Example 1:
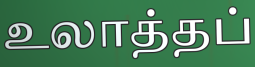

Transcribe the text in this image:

உலாத்தப்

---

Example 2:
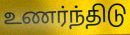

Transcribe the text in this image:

உணர்ந்திடு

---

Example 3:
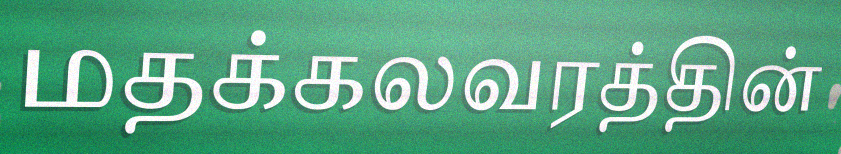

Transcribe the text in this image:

மதக்கலவரத்தின்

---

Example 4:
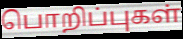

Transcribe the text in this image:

பொறிப்புகள்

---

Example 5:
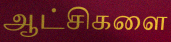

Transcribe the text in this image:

ஆட்சிகளை